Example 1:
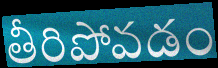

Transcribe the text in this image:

తీరిపోవడం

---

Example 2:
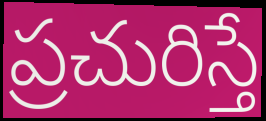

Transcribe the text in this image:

ప్రచురిస్తే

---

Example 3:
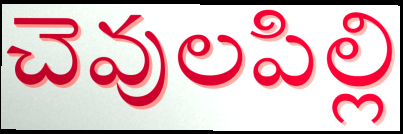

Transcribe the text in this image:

చెవులపిల్లి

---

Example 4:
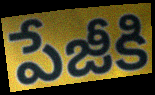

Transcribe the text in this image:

పేజీకి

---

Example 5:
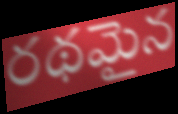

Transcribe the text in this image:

రథమైన